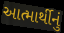
આત્માર્થીનું